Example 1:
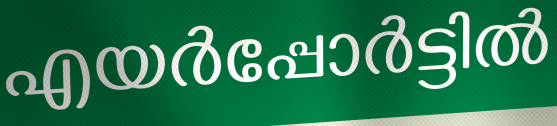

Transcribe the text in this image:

എയർപ്പോർട്ടിൽ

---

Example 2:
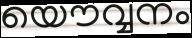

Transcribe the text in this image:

യൌവ്വനം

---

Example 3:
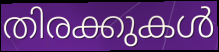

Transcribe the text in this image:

തിരക്കുകൾ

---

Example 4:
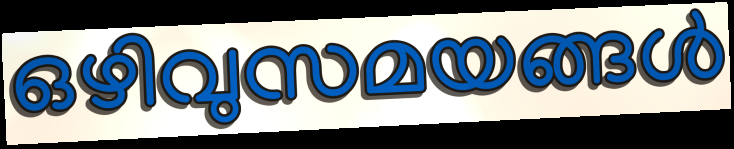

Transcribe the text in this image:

ഒഴിവുസമയങ്ങൾ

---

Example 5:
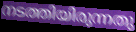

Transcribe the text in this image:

നടത്തിയിരുന്നതു